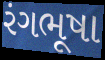
રંગભૂષા